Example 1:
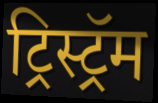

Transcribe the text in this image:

ट्रिस्ट्रॅम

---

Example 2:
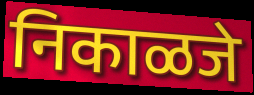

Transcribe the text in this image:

निकाळजे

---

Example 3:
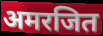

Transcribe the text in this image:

अमरजित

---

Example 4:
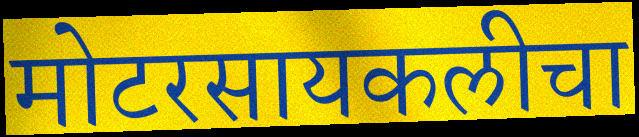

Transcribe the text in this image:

मोटरसायकलीचा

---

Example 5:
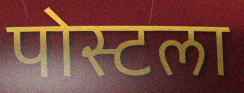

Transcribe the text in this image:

पोस्टला